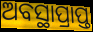
ଅବସ୍ଥାପ୍ରାପ୍ତ